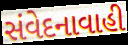
સંવેદનાવાહી